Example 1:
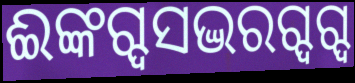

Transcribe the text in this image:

ଈଙ୍କଗ୍ଦସଦ୍ଭରଗ୍ଦଗ୍ଦ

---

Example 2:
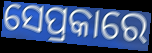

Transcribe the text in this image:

ସେପ୍ରକାରେ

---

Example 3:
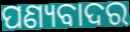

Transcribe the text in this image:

ପଣ୍ୟବାଦର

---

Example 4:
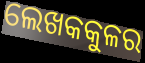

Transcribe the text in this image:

ଲେଖକକୁଳର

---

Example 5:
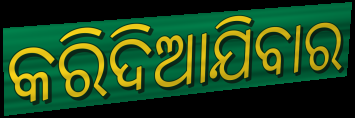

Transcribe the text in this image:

କରିଦିଆଯିବାର